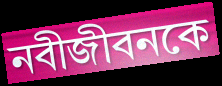
নবীজীবনকে